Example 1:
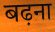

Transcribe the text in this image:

बढ़ना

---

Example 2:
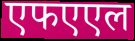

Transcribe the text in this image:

एफएएल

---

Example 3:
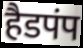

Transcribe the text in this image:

हैडपंप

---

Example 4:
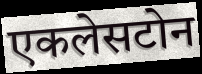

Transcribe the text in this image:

एकलेसटोन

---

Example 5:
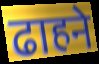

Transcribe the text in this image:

ढाहने